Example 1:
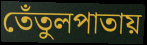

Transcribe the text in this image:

তেঁতুলপাতায়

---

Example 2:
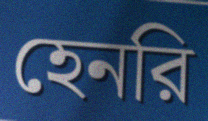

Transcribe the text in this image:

হেনরি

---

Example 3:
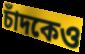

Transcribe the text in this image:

চাঁদকেও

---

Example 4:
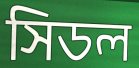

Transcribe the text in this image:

সিডল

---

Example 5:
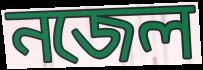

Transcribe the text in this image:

নজেল